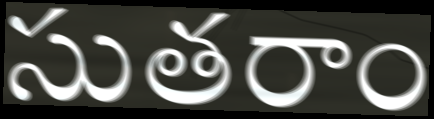
సుతరాం